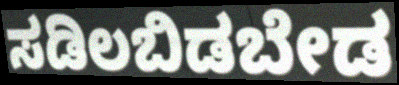
ಸಡಿಲಬಿಡಬೇಡ